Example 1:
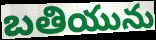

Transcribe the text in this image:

బతియును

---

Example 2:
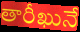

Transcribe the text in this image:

తారీఖునే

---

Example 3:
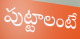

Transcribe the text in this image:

పుట్టాలంటే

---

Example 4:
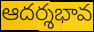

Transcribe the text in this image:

ఆదర్శభావ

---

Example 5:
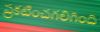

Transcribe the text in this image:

ప్రకటించగలిగింది